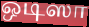
ஒடிஸா